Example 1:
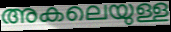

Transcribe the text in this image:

അകലെയുള്ള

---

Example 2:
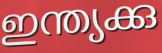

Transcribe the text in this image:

ഇന്ത്യക്കു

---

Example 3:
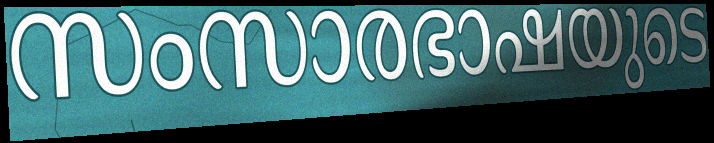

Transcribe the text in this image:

സംസാരഭാഷയുടെ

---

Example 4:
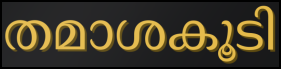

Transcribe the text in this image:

തമാശകൂടി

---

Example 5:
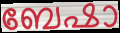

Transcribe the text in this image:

ബേഷാ